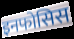
इनफोसिस